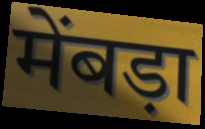
मेंबड़ा